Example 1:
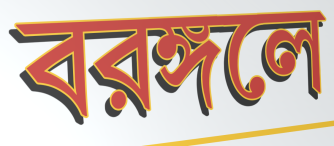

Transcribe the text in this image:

বরঙ্গলে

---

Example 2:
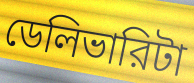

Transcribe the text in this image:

ডেলিভারিটা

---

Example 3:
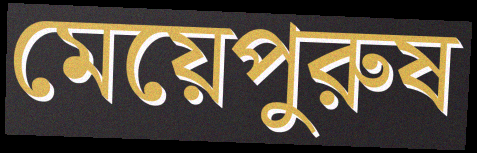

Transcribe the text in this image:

মেয়েপুরুষ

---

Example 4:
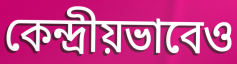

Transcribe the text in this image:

কেন্দ্রীয়ভাবেও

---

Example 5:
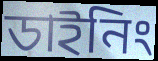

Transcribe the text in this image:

ডাইনিং